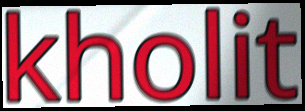
kholit